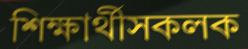
শিক্ষাৰ্থীসকলক